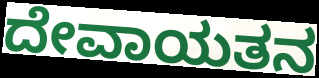
ದೇವಾಯತನ